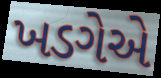
ખડગેએ